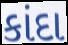
કાંદા